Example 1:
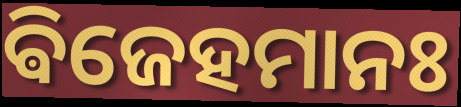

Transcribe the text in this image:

ଵିଜେହମାନଃ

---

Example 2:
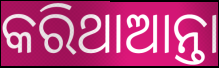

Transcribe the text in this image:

କରିଥାଆନ୍ତା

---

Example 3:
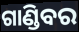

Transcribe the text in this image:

ଗାଣ୍ଡିବର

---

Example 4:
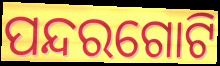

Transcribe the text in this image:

ପନ୍ଦରଗୋଟି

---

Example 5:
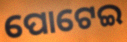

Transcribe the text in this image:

ପୋଟେଇ